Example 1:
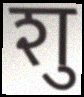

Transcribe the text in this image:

शु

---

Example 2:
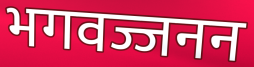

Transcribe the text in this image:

भगवज्जनन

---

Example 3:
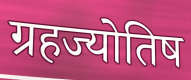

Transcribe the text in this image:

ग्रहज्योतिष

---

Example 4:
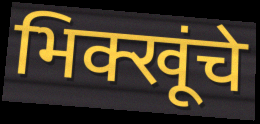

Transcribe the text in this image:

भिक्खूंचे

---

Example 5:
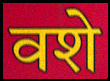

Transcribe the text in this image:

वशे